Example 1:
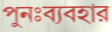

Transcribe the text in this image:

পুনঃব্যবহার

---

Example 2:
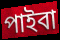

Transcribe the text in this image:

পাইবা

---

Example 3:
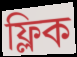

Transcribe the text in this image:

ফ্লিক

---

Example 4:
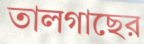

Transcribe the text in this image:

তালগাছের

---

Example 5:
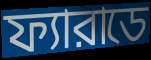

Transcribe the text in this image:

ফ্যারাডে